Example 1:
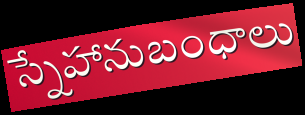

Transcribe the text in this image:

స్నేహానుబంధాలు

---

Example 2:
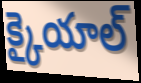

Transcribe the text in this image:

క్కైయాల్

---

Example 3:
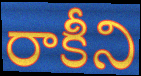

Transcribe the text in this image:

రాకీని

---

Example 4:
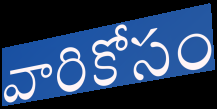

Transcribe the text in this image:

వారికోసం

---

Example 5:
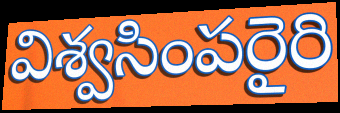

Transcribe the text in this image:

విశ్వసింపరైరి